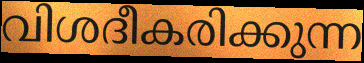
വിശദീകരിക്കുന്ന